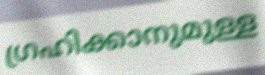
ഗ്രഹിക്കാനുമുള്ള